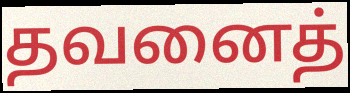
தவனைத்